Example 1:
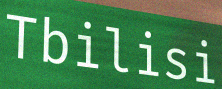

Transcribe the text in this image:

Tbilisi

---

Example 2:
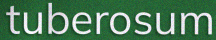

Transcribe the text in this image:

tuberosum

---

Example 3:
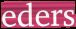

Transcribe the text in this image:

eders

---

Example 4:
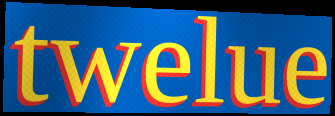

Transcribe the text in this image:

twelue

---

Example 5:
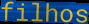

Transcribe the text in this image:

filhos